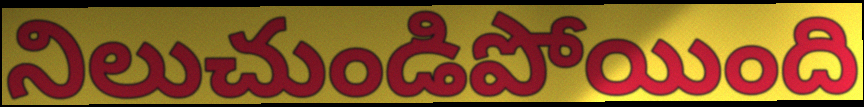
నిలుచుండిపోయింది